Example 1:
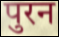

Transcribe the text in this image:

पुरन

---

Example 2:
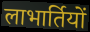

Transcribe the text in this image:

लाभार्तियों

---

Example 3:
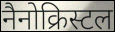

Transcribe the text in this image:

नैनोक्रिस्टल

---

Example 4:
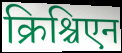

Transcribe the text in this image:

क्रिश्चिएन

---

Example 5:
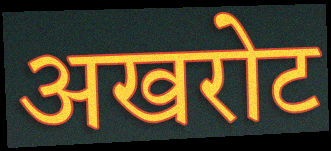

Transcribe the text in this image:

अखरोट